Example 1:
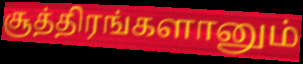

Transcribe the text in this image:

சூத்திரங்களானும்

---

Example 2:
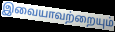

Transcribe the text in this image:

இவையாவற்றையும்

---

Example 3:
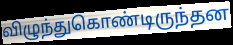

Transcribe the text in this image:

விழுந்துகொண்டிருந்தன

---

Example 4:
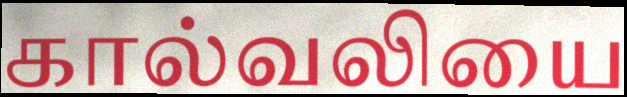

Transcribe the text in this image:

கால்வலியை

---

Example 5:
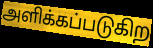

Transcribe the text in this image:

அளிக்கப்படுகிற